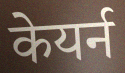
केयर्न